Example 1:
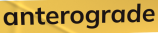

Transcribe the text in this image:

anterograde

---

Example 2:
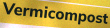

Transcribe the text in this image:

Vermicompost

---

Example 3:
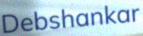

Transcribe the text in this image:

Debshankar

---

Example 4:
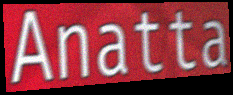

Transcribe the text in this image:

Anatta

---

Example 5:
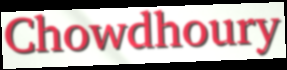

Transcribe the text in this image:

Chowdhoury